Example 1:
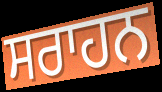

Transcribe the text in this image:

ਸਰਾਹਨ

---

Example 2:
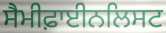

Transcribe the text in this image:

ਸੈਮੀਫ਼ਾਈਨਲਿਸਟ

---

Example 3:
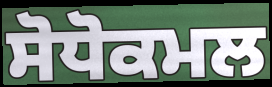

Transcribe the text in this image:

ਸੋਧੋਕਮਲ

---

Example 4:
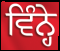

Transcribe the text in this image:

ਵਿੰਨ੍ਹੇ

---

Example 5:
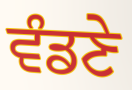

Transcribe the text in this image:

ਵੰਡਣੇ